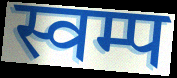
स्वम्प